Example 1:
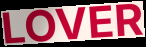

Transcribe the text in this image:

LOVER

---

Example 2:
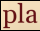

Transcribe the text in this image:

pla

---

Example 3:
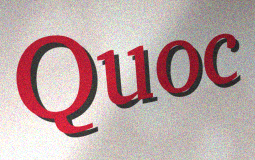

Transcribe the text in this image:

Quoc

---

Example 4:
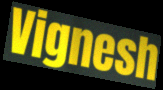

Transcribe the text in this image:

Vignesh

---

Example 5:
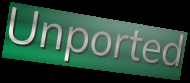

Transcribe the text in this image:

Unported